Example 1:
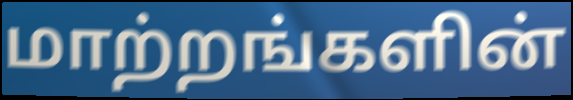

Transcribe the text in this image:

மாற்றங்களின்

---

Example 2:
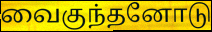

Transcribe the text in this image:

வைகுந்தனோடு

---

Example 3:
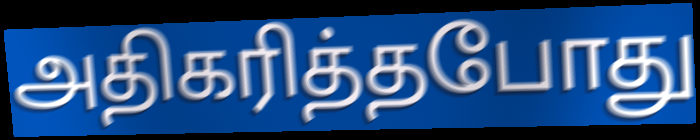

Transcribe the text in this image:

அதிகரித்தபோது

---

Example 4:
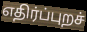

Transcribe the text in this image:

எதிர்ப்புறச்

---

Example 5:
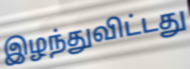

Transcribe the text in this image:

இழந்துவிட்டது